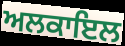
ਅਲਕਾਇਲ